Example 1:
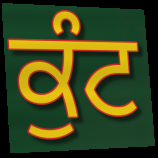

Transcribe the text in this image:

ਕੁੰਟ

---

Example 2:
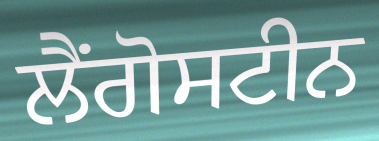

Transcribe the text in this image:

ਲੈਂਗੋਸਟੀਨ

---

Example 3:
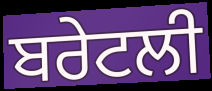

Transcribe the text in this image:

ਬਰੇਟਲੀ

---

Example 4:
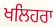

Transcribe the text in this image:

ਖਲਿਹਰਾ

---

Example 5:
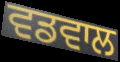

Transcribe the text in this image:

ਵਡਵਾਲ